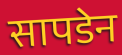
सापडेन